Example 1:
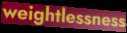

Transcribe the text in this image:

weightlessness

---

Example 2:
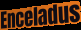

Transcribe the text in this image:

Enceladus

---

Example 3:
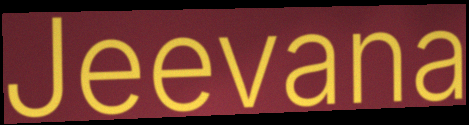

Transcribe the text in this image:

Jeevana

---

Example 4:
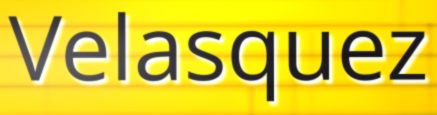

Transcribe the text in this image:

Velasquez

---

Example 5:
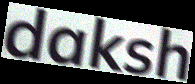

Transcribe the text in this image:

daksh